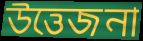
উত্তেজনা